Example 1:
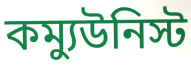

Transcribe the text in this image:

কম্যুউনিস্ট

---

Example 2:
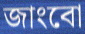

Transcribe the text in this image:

জাংবো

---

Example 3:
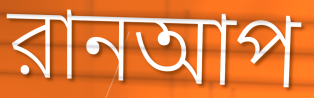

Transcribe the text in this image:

রানআপ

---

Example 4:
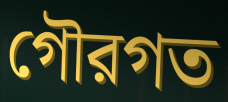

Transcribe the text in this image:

গৌরগত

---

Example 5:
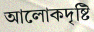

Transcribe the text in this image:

আলোকদৃষ্টি